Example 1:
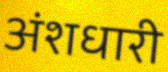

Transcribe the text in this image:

अंशधारी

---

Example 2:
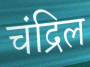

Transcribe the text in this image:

चंद्रिल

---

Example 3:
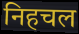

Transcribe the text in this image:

निहचल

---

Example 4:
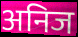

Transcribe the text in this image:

अनिज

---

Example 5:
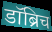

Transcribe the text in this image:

डॉब्रिच